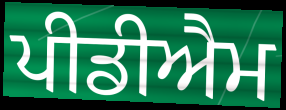
ਪੀਡੀਐਮ